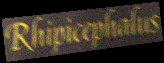
Rhipicephalus